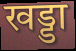
खड्डा